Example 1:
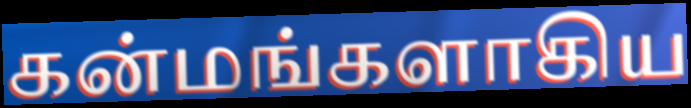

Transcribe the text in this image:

கன்மங்களாகிய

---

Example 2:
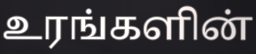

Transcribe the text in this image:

உரங்களின்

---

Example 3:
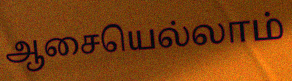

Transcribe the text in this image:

ஆசையெல்லாம்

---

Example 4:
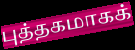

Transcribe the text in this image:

புத்தகமாகக்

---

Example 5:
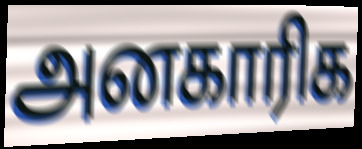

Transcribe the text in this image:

அனகாரிக